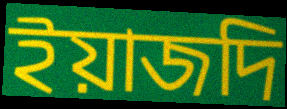
ইয়াজদি